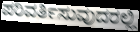
ಪರಿವರ್ತಿಸುವುದರಲ್ಲಿ